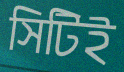
সিটিই